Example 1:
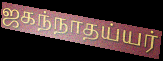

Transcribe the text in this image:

ஜகந்நாதய்யர்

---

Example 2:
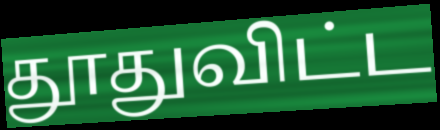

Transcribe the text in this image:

தூதுவிட்ட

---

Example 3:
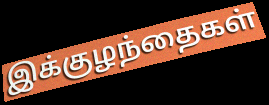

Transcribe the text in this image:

இக்குழந்தைகள்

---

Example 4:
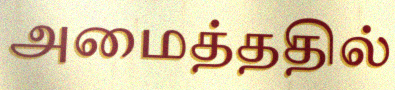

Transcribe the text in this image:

அமைத்ததில்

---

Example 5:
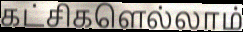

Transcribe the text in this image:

கட்சிகளெல்லாம்